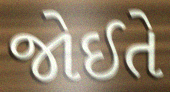
જોઈતે